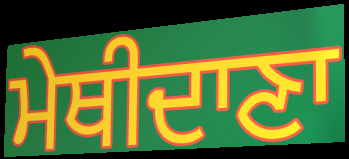
ਮੇਥੀਦਾਣਾ